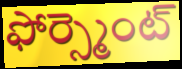
ఫోర్స్మెంట్